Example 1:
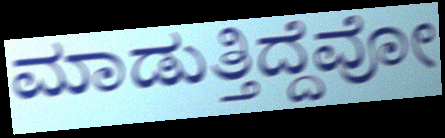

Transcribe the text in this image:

ಮಾಡುತ್ತಿದ್ದೆವೋ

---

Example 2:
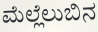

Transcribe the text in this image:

ಮೆಲ್ಲೆಲುಬಿನ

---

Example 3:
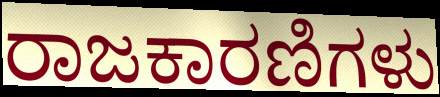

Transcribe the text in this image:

ರಾಜಕಾರಣಿಗಳು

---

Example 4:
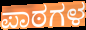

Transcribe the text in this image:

ಪಾಠಗಳ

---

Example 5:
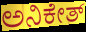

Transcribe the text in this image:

ಅನಿಕೇತ್